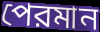
পেরমান